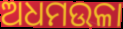
ଅଧମଉଳା